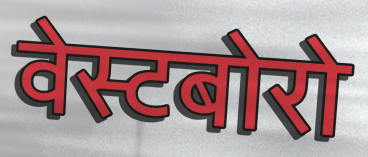
वेस्टबोरो